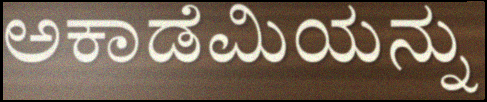
ಅಕಾಡೆಮಿಯನ್ನು